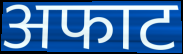
अफाट